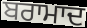
ਬਰਾਮਾਦ